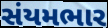
સંયમભાર